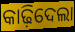
କାଢ଼ିଦେଲା